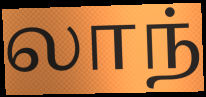
லாந்